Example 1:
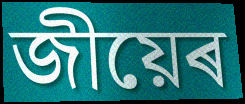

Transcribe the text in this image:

জীয়েৰ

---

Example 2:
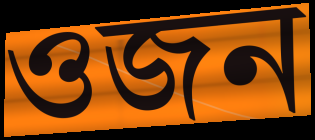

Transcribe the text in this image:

ওজন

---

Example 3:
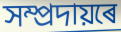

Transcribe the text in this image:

সম্প্ৰদায়ৰে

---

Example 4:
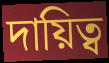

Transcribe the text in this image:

দায়িত্ব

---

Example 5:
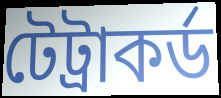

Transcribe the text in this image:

টেট্ৰাকৰ্ড